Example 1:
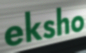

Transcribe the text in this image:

eksho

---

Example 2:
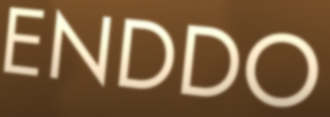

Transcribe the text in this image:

ENDDO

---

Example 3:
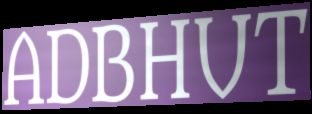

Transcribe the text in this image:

ADBHUT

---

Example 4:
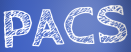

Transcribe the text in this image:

PACS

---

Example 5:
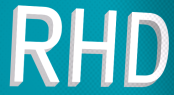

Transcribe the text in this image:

RHD